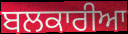
ਬਲਕਾਰੀਆ